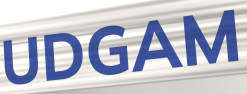
UDGAM